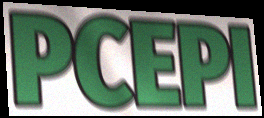
PCEPI